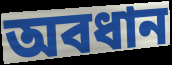
অবধান